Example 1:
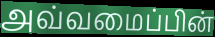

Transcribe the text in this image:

அவ்வமைப்பின்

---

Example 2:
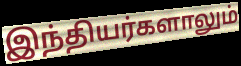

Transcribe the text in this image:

இந்தியர்களாலும்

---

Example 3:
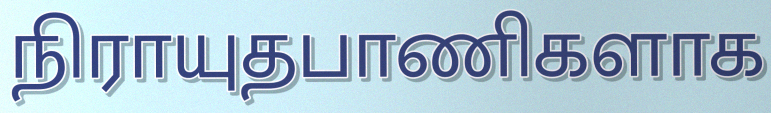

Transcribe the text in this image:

நிராயுதபாணிகளாக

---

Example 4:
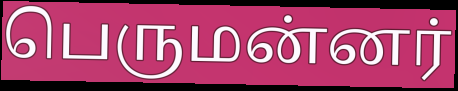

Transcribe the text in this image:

பெருமன்னர்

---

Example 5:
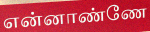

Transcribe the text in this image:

என்னாண்ணே